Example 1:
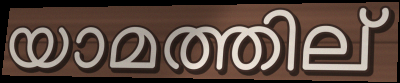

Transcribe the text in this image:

യാമത്തില്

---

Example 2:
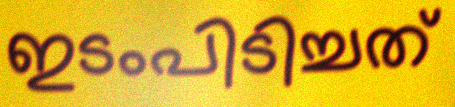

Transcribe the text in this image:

ഇടംപിടിച്ചത്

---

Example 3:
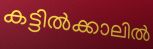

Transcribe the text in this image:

കട്ടിൽക്കാലിൽ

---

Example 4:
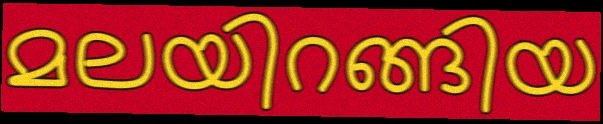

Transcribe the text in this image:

മലയിറങ്ങിയ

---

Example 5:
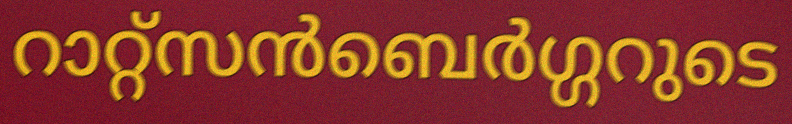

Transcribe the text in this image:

റാറ്റ്സൻബെർഗ്ഗറുടെ